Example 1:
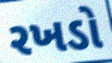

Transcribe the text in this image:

રખડો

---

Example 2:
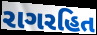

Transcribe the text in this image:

રાગરહિત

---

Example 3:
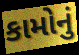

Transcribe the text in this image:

કામોનું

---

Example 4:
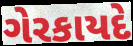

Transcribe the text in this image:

ગેરકાયદે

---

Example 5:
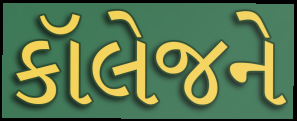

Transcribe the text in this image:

કૉલેજને